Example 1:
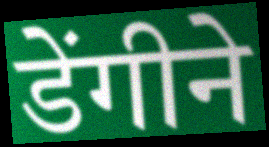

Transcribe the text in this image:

डेंगीने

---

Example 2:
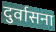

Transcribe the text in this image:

दुर्वासना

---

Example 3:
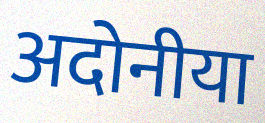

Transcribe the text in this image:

अदोनीया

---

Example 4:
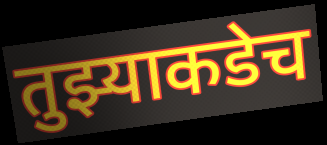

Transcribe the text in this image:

तुझ्याकडेच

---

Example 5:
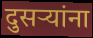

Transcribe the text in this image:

दुसऱ्यांना